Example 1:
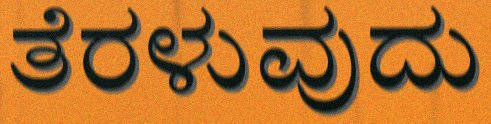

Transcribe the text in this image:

ತೆರಳುವುದು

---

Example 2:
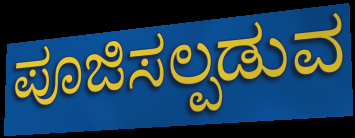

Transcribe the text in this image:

ಪೂಜಿಸಲ್ಪಡುವ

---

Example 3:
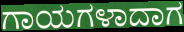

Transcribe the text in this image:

ಗಾಯಗಳಾದಾಗ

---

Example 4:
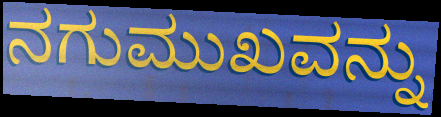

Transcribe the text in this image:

ನಗುಮುಖವನ್ನು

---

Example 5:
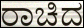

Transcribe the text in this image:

ರಾಚಿದ